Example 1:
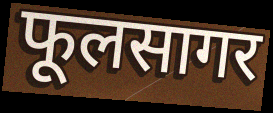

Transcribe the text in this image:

फूलसागर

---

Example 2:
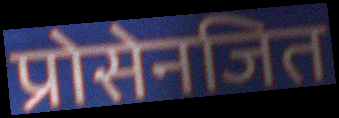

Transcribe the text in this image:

प्रोसेनजित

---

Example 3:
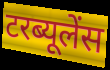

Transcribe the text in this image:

टरब्यूलेंस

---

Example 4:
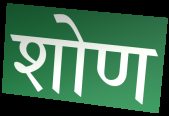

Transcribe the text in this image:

शोण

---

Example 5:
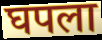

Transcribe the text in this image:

घपला